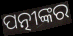
ପତ୍ନୀଙ୍କର